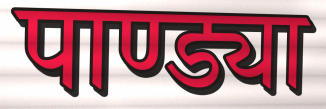
पाण्ड्या